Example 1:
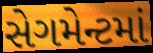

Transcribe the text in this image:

સેગમેન્ટમાં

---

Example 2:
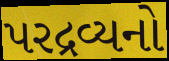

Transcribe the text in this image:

પરદ્રવ્યનો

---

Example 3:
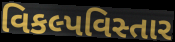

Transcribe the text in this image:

વિકલ્પવિસ્તાર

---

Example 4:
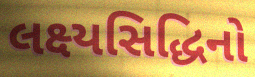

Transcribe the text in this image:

લક્ષ્યસિદ્ધિનો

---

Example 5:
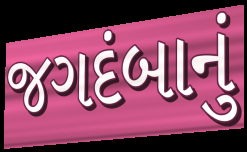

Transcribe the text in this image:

જગદંબાનું